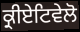
ਕ੍ਰੀਏਟਿਵੇਲੋ